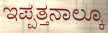
ಇಪ್ಪತ್ತನಾಲ್ಕೂ